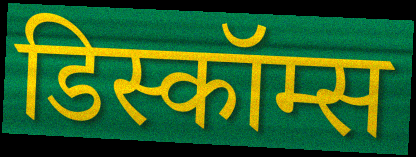
डिस्कॉम्स